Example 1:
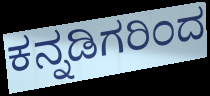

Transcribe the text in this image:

ಕನ್ನಡಿಗರಿಂದ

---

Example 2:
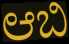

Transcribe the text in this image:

ಆಬಿ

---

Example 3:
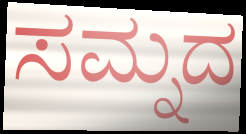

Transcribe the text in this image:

ಸಮ್ನದ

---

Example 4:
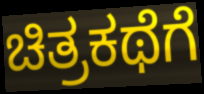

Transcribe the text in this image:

ಚಿತ್ರಕಥೆಗೆ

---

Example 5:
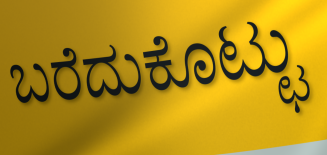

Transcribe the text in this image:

ಬರೆದುಕೊಟ್ಟು